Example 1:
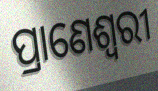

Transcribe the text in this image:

ପ୍ରାଣେଶ୍ୱରୀ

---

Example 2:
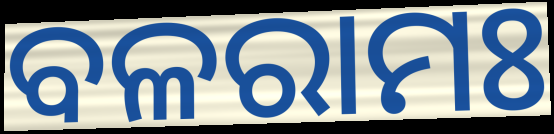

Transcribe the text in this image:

ବଳରାମଃ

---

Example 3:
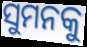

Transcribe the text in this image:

ସୁମନକୁ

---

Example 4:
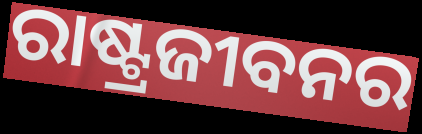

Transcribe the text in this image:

ରାଷ୍ଟ୍ରଜୀବନର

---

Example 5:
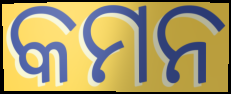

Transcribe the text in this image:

କମନ